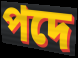
পদে